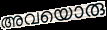
അവയൊരു